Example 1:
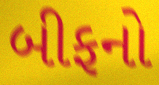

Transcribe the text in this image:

બીફનો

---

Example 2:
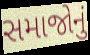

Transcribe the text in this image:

સમાજોનું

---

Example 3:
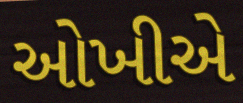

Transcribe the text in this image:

ઓખીએ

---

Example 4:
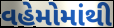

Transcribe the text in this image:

વહેમોમાંથી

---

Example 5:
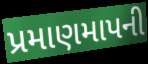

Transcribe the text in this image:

પ્રમાણમાપની